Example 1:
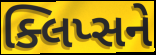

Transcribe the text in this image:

ક્લિપ્સને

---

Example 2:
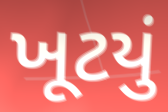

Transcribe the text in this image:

ખૂટયું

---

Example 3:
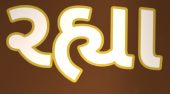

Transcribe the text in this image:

રહ્યા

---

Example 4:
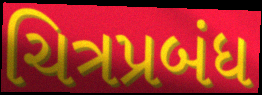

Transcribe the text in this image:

ચિત્રપ્રબંધ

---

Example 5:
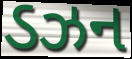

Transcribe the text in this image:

ડઝન